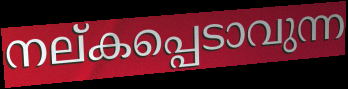
നല്കപ്പെടാവുന്ന